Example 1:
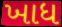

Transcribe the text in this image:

ખાધ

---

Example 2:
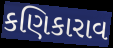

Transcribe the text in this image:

કણિકારાવ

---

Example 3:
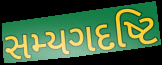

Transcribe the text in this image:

સમ્યગદષ્ટિ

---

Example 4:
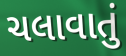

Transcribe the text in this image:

ચલાવાતું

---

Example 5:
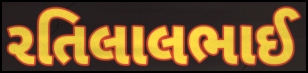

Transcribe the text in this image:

રતિલાલભાઈ